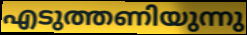
എടുത്തണിയുന്നു